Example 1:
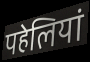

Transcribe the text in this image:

पहेलियां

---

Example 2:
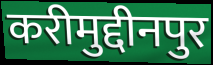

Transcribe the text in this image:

करीमुद्दीनपुर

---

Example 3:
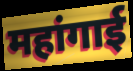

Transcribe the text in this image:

महांगाई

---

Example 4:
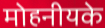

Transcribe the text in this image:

मोहनीयके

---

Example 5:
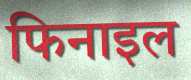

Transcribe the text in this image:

फिनाइल